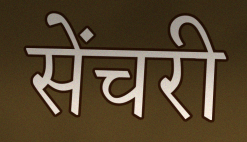
सेंचरी